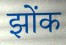
झोंक